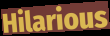
Hilarious